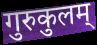
गुरुकुलम्